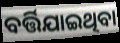
ବର୍ତ୍ତିଯାଇଥିବା